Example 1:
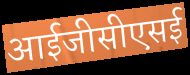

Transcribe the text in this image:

आईजीसीएसई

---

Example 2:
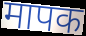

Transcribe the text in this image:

मापक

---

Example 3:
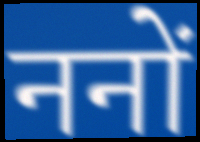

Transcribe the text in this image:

ननों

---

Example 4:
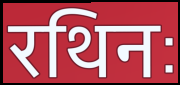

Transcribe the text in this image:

रथिनः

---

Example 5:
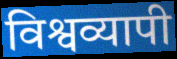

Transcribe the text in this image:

विश्वव्यापी